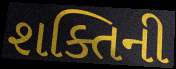
શક્તિની